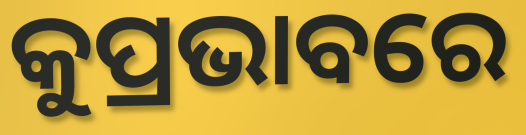
କୁପ୍ରଭାବରେ